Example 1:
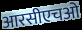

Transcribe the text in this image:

आरसीएचओ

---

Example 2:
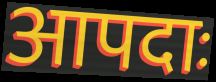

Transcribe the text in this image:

आपदाः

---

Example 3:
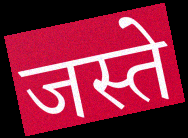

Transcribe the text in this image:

जस्ते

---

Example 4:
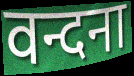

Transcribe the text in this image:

वन्दना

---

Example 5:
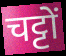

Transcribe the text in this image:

चट्टों